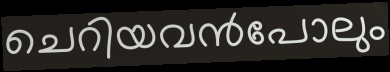
ചെറിയവൻപോലും